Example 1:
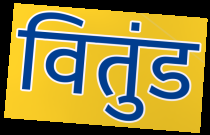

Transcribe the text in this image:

वितुंड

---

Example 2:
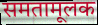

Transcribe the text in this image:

समतामूलक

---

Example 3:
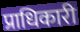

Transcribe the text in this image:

प्राधिकारी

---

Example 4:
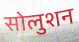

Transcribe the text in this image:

सोलुशन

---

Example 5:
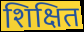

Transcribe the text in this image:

शिक्षित